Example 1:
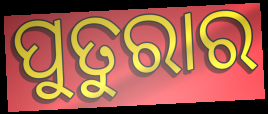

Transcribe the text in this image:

ପୁତୁରାର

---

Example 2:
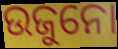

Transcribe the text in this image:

ଉଜୁନୋ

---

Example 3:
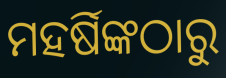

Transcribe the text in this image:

ମହର୍ଷିଙ୍କଠାରୁ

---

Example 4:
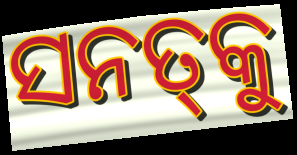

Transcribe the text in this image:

ସନତ୍‍କୁ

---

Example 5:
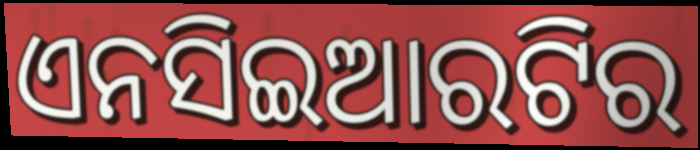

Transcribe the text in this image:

ଏନସିଇଆରଟିର